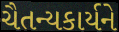
ચૈતન્યકાર્યને